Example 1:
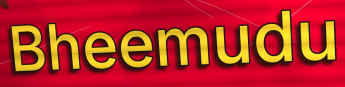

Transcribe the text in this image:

Bheemudu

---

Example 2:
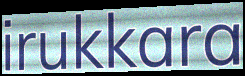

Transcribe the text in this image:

irukkara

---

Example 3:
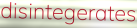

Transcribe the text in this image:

disintegerates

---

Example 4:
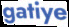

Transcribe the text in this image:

gatiye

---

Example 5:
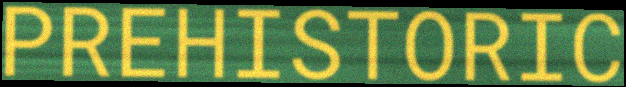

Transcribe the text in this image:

PREHISTORIC